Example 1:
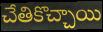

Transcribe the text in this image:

చేతికొచ్చాయి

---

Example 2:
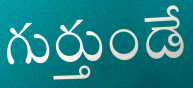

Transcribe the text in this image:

గుర్తుండే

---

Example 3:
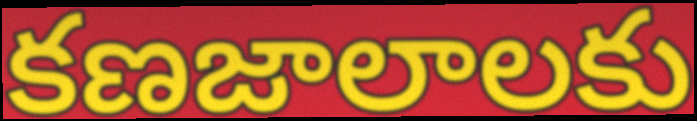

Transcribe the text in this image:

కణజాలాలకు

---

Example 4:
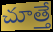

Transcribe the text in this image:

చూత్తే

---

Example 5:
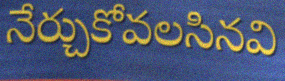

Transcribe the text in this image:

నేర్చుకోవలసినవి